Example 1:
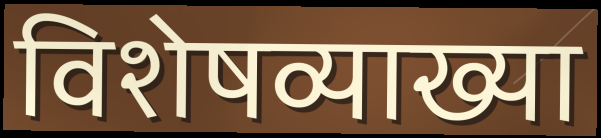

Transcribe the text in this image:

विशेषव्याख्या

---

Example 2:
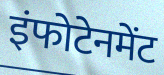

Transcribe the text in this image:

इंफोटेनमेंट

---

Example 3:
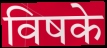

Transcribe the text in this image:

विषके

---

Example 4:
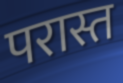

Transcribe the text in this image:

परास्त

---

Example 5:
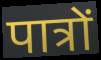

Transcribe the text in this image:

पात्रों